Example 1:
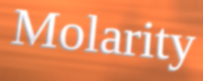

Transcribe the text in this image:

Molarity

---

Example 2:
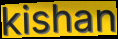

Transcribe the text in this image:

kishan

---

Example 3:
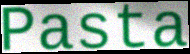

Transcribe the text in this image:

Pasta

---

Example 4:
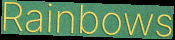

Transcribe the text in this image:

Rainbows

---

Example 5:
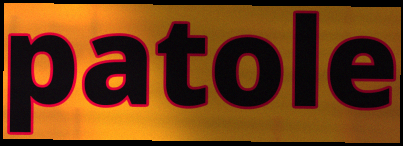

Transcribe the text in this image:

patole